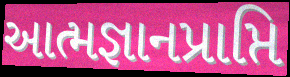
આત્મજ્ઞાનપ્રાપ્તિ